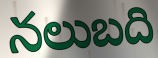
నలుబది